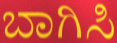
ಬಾಗಿಸಿ